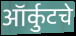
ऑर्कुटचे